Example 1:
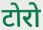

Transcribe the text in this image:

टोरो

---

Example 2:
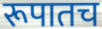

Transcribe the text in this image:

रूपातच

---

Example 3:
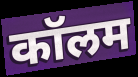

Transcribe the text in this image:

कॉलम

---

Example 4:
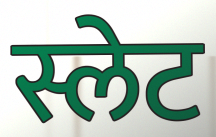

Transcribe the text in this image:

स्लेट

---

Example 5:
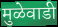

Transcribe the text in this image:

मुळेवाडी